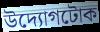
উদ্যোগটোক